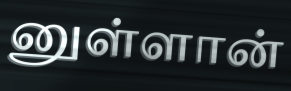
னுள்ளான்